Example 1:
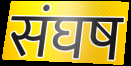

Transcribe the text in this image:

संघष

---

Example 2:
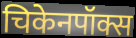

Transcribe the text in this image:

चिकेनपॉक्स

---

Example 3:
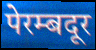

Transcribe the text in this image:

पेरम्बदूर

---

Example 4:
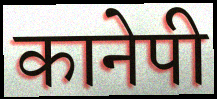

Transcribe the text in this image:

कानेपी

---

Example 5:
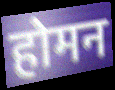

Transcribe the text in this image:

होमन